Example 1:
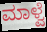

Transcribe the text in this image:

ಮಾಳ್ವೆ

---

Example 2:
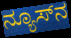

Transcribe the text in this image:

ನ್ಯೂಸ್‌ನ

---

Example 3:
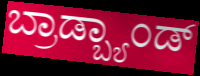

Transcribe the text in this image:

ಬ್ರಾಡ್ಬ್ಯಾಂಡ್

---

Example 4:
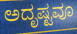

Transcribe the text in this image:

ಅದೃಷ್ಟವೂ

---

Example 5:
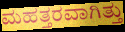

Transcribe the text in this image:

ಮಹತ್ತರವಾಗಿತ್ತು